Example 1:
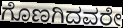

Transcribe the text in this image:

ಗೊಣಗಿದವರೇ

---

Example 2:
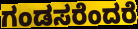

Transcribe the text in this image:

ಗಂಡಸರೆಂದರೆ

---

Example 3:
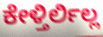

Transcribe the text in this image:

ಕೇಳ್ತಿರ್ಲಿಲ್ಲ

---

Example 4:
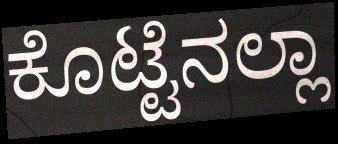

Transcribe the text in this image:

ಕೊಟ್ಟೆನಲ್ಲಾ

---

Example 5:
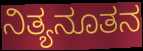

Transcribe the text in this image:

ನಿತ್ಯನೂತನ